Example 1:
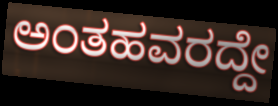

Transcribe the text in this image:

ಅಂತಹವರದ್ದೇ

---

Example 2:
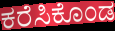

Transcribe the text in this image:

ಕರೆಸಿಕೊಂಡ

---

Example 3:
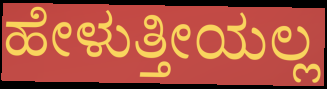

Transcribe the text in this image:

ಹೇಳುತ್ತೀಯಲ್ಲ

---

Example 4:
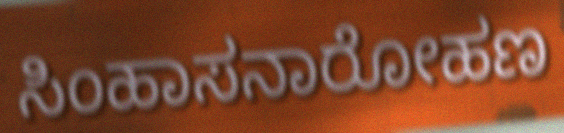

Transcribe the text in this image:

ಸಿಂಹಾಸನಾರೋಹಣ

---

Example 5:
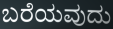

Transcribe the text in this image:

ಬರೆಯವುದು